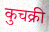
कुचक्री